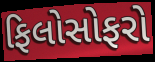
ફિલોસોફરો